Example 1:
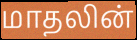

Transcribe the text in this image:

மாதலின்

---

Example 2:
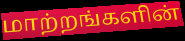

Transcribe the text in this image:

மாற்றங்களின்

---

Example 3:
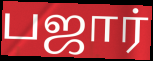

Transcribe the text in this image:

பஜார்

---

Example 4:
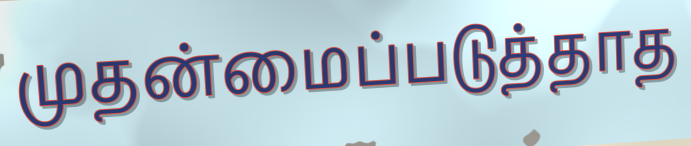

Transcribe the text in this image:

முதன்மைப்படுத்தாத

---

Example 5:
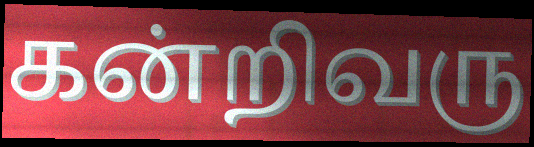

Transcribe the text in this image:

கன்றிவரு